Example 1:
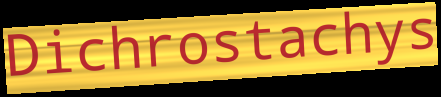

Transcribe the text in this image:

Dichrostachys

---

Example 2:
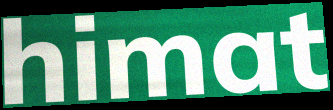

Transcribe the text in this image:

himat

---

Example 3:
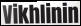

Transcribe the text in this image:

Vikhlinin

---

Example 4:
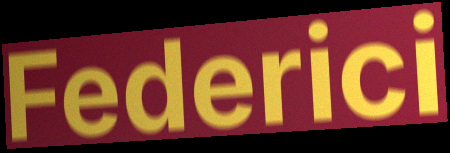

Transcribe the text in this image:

Federici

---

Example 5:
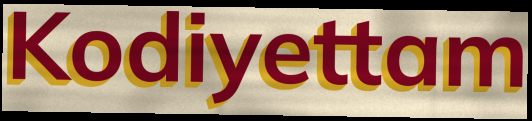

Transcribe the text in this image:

Kodiyettam